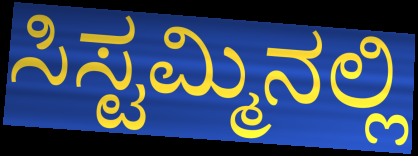
ಸಿಸ್ಟಮ್ಮಿನಲ್ಲಿ